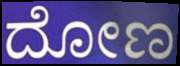
ದೋಣ